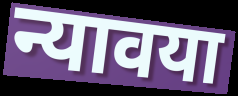
न्यावया